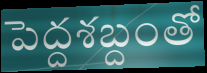
పెద్దశబ్దంతో